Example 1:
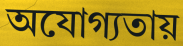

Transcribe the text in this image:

অযোগ্যতায়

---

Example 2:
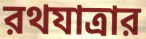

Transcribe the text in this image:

রথযাত্রার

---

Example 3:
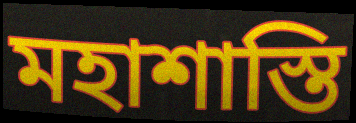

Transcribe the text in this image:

মহাশাস্তি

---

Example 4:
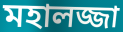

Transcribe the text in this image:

মহালজ্জা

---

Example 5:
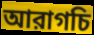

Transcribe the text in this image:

আরাগচি